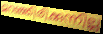
മറഞ്ഞിരിക്കുന്നില്ല